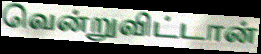
வென்றுவிட்டான்